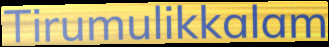
Tirumulikkalam